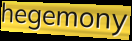
hegemony